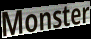
Monster